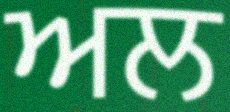
ਅਲ